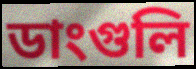
ডাংগুলি